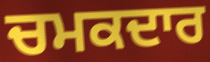
ਚਮਕਦਾਰ